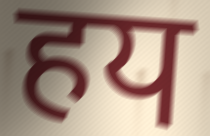
हय